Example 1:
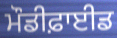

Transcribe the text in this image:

ਮੌਡੀਫ਼ਾਈਡ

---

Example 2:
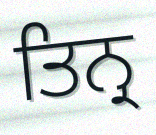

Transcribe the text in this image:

ਤਿਨ੍ਰ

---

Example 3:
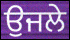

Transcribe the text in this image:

ਉਜਲੇ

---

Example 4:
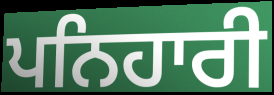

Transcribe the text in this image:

ਪਨਿਹਾਰੀ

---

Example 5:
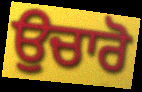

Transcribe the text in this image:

ਉਚਾਰੋ